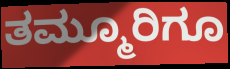
ತಮ್ಮೂರಿಗೂ